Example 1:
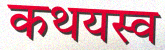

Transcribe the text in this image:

कथयस्व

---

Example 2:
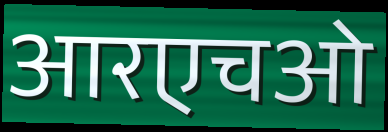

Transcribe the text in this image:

आरएचओ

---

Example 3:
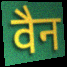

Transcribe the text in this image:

वैन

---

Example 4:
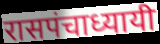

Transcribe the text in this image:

रासपंचाध्यायी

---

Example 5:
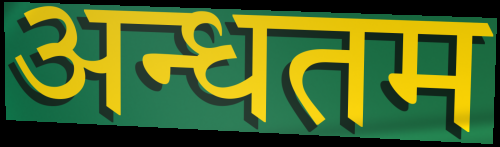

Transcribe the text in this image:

अन्धतम